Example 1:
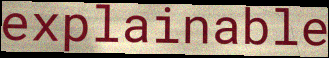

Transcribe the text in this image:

explainable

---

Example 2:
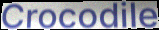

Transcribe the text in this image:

Crocodile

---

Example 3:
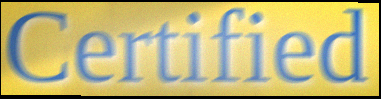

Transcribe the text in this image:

Certified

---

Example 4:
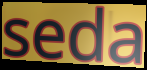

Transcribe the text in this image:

seda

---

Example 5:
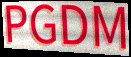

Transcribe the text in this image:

PGDM